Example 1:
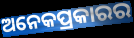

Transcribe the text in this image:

ଅନେକପ୍ରକାରର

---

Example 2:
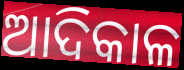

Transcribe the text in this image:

ଆଦିକାଳ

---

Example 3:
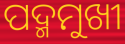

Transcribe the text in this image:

ପଦ୍ମମୁଖୀ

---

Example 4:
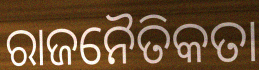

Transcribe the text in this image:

ରାଜନୈତିକତା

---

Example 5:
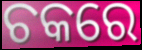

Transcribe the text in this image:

ଚକରେ